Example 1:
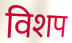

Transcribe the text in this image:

विशप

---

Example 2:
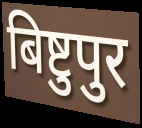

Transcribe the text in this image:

बिष्टुपुर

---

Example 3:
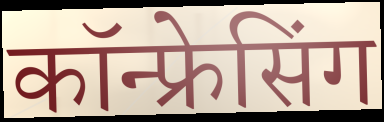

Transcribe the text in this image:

कॉन्फ्रेसिंग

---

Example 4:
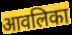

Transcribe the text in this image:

आवलिका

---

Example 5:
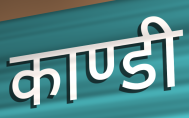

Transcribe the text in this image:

काण्डी